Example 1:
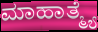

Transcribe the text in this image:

ಮಾಹಾತ್ಮ್ಯೆ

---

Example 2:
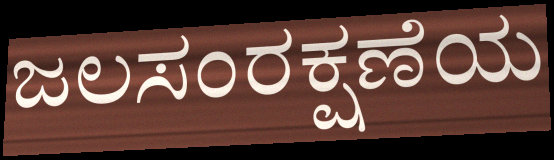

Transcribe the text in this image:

ಜಲಸಂರಕ್ಷಣೆಯ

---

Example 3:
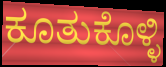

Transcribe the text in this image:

ಕೂತುಕೊಳ್ಳಿ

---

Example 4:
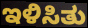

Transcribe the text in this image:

ಇಳಿಸಿತು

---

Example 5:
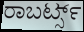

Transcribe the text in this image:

ರಾಬರ್ಟ್ಸ್